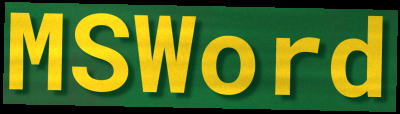
MSWord